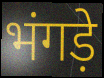
भंगड़े